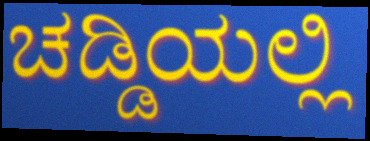
ಚಡ್ಡಿಯಲ್ಲಿ